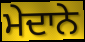
ਮੇਦਾਨੇ